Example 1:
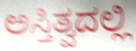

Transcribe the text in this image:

ಅಸ್ತಿತ್ವದಲ್ಲಿ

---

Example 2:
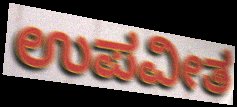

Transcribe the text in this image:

ಉಪವೀತ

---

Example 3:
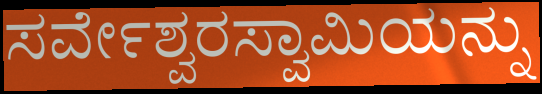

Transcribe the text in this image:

ಸರ್ವೇಶ್ವರಸ್ವಾಮಿಯನ್ನು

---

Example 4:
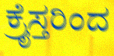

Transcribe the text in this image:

ಕ್ರೈಸ್ತರಿಂದ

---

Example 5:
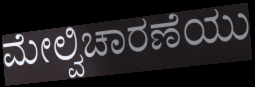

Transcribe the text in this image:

ಮೇಲ್ವಿಚಾರಣೆಯು